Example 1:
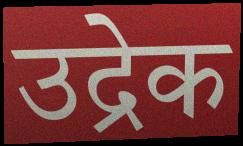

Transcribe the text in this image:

उद्रेक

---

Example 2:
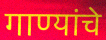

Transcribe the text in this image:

गाण्यांचे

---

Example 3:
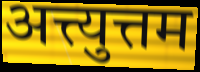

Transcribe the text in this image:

अत्त्युत्तम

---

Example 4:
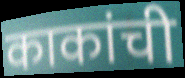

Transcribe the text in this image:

काकांची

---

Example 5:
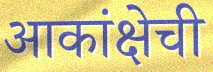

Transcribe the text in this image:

आकांक्षेची